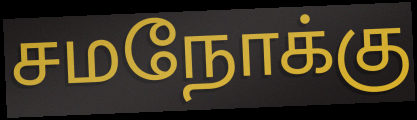
சமநோக்கு